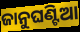
ଜାନୁଘଣ୍ଟିଆ